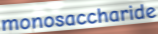
monosaccharide